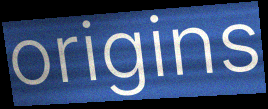
origins